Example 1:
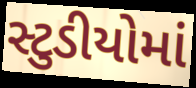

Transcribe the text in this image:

સ્ટુડીયોમાં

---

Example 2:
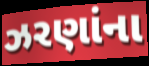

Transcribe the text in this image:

ઝરણાંના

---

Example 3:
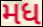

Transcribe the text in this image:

મધ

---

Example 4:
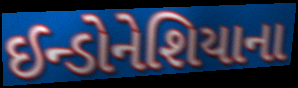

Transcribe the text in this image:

ઈન્ડોનેશિયાના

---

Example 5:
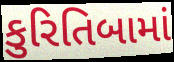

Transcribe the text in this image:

કુરિતિબામાં